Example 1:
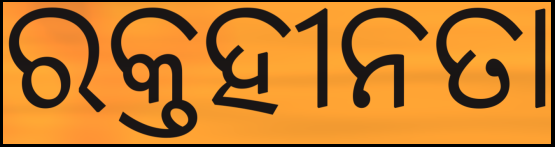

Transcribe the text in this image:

ରକ୍ତହୀନତା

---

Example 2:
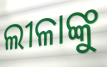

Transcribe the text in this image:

ଲୀଳାଙ୍କୁ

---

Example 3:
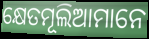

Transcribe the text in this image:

କ୍ଷେତମୂଲିଆମାନେ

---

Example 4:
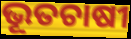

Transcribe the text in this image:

ଭୂତଚାଷୀ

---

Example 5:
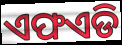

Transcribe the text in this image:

ଏଫଏଡି